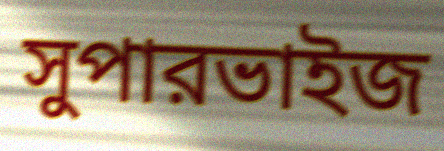
সুপারভাইজ